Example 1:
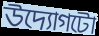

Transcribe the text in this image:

উদ্যোগটো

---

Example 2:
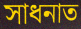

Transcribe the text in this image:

সাধনাত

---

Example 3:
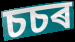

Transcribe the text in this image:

চচৰ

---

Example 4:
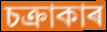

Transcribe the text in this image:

চক্ৰাকাৰ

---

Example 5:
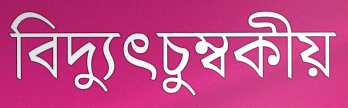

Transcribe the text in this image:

বিদ্যুৎচুম্বকীয়